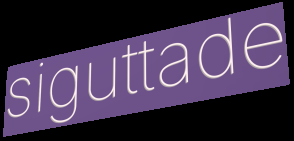
siguttade